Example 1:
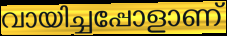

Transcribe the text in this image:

വായിച്ചപ്പോളാണ്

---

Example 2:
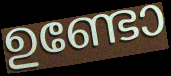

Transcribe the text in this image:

ഉണ്ടോ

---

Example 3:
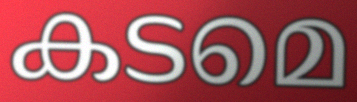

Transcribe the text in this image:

കടമെ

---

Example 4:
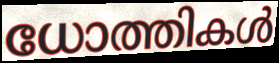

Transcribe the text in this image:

ധോത്തികൾ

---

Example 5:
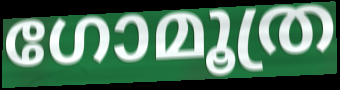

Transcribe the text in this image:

ഗോമൂത്ര